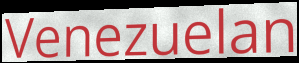
Venezuelan